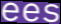
ees